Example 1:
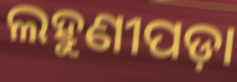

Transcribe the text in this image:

ଲହୁଣୀପଡ଼ା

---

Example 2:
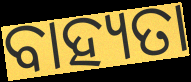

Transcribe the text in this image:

ବାହ୍ୟତା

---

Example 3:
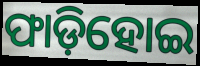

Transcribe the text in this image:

ଫାଡ଼ିହୋଇ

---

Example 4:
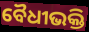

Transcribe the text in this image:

ବୈଧୀଭକ୍ତି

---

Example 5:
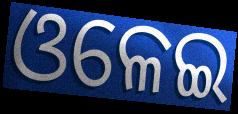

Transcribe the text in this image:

ଓଳେଇ